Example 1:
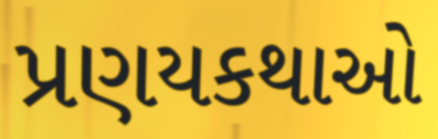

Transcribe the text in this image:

પ્રણયકથાઓ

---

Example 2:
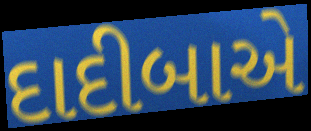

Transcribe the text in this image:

દાદીબાએ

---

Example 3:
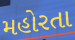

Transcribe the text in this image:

મહોરતા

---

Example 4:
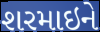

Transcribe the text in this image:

શરમાઇને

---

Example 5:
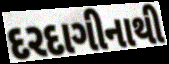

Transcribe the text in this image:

દરદાગીનાથી